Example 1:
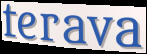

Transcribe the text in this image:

terava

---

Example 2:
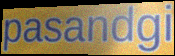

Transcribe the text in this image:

pasandgi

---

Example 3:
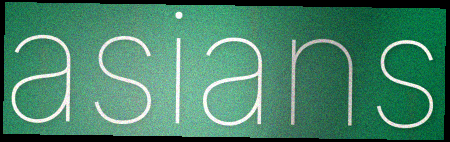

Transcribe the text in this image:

asians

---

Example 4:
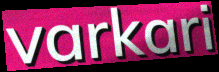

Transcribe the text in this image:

varkari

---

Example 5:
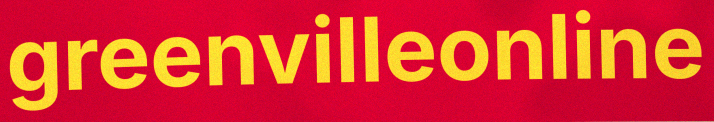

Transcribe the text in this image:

greenvilleonline